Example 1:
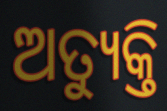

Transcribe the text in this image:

ଅତ୍ୟୁକ୍ତି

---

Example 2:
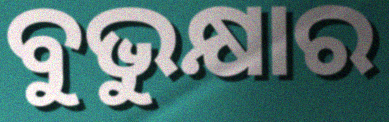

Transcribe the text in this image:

ବୁଭୁକ୍ଷାର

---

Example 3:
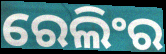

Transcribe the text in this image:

ରେଲିଂର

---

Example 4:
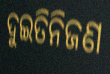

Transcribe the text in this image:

ଦୁଇତିନିଜଣ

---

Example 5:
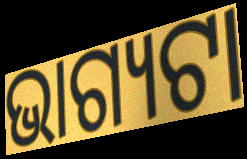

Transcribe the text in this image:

ଭାଗ୍ୟଟା